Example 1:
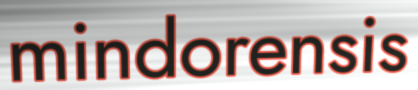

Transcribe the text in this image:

mindorensis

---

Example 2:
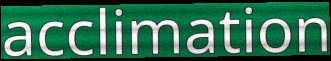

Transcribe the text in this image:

acclimation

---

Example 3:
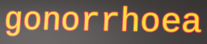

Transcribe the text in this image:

gonorrhoea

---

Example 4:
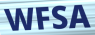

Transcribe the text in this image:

WFSA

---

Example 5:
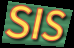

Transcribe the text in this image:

SIS